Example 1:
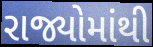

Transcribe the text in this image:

રાજ્યોમાંથી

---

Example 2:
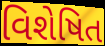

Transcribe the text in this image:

વિશેષિત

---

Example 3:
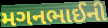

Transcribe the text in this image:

મગનભાઈની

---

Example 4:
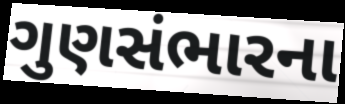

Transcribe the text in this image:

ગુણસંભારના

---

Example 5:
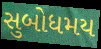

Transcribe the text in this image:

સુબોધમય